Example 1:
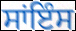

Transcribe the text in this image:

ਸਾਂਇੰਸ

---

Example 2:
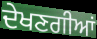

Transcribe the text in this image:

ਦੇਖਣਗੀਆਂ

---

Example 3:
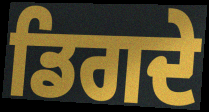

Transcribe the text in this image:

ਡਿਗਦੇ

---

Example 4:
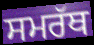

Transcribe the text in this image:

ਸਮਰੱਥ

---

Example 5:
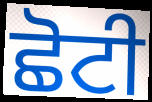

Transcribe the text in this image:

ਛੋਟੀ